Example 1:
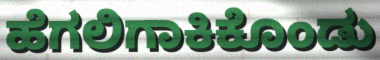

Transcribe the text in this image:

ಹೆಗಲಿಗಾಕಿಕೊಂಡು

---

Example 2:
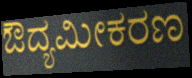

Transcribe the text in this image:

ಔದ್ಯಮೀಕರಣ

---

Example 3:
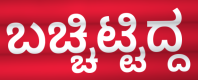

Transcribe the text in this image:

ಬಚ್ಚಿಟ್ಟಿದ್ದ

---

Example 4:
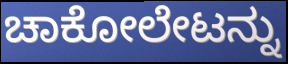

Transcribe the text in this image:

ಚಾಕೋಲೇಟನ್ನು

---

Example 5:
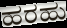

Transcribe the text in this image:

ಹರಹು